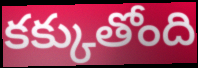
కక్కుతోంది